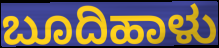
ಬೂದಿಹಾಳು